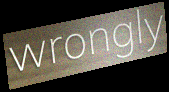
wrongly